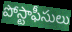
పోస్టాఫీసులు